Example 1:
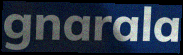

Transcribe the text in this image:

gnarala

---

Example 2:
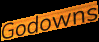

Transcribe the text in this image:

Godowns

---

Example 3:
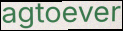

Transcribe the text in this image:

agtoever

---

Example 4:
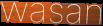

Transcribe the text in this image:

wasan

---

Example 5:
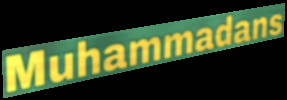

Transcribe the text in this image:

Muhammadans